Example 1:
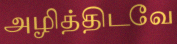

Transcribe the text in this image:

அழித்திடவே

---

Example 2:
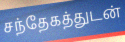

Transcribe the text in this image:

சந்தேகத்துடன்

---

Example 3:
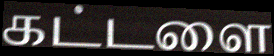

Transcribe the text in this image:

கட்டளை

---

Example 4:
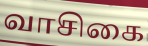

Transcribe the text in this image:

வாசிகை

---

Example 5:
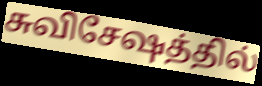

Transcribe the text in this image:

சுவிசேஷத்தில்